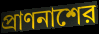
প্রাণনাশের